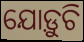
ଯୋଡ଼ୁଚି